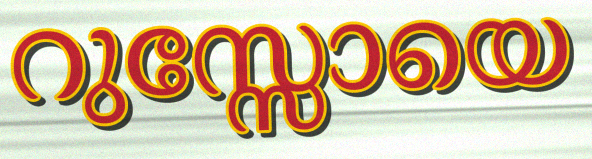
റുസ്സോയെ